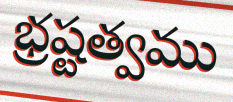
భ్రష్టత్వము